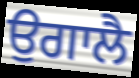
ਉਗਾਲੈ